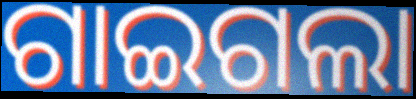
ଗାଇଗଲା